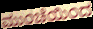
ಮುಂಚೆಯಿಂದ